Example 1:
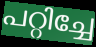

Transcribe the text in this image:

പറ്റിച്ചേ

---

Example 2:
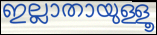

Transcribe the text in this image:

ഇല്ലാതായുള്ളൂ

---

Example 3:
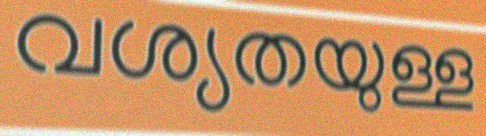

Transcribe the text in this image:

വശ്യതയുള്ള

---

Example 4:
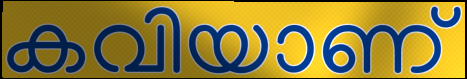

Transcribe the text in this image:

കവിയാണ്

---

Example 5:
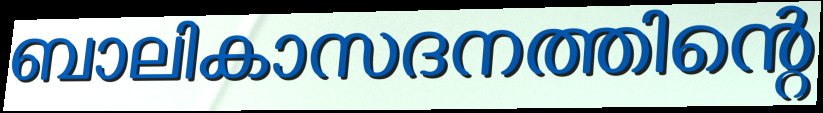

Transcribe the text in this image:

ബാലികാസദനത്തിന്റെ